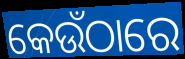
କେଉଁଠାରେ